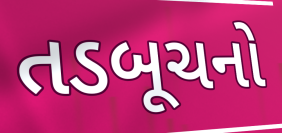
તડબૂચનો